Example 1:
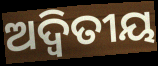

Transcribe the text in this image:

ଅଦ୍ବିତୀୟ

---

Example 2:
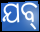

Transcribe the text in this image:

ଯବ୍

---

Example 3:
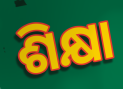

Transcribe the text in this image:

ଶିକ୍ଷା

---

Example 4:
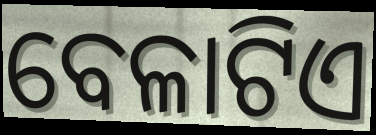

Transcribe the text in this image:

ବେଳାଟିଏ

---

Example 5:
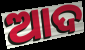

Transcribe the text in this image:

ଆଦ